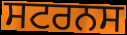
ਸਟਰਨਸ